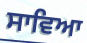
ਸਾਵਿਆ